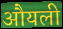
औयली